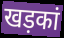
खड़कां